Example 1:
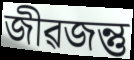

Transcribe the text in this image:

জীৱজন্তু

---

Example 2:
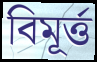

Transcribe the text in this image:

বিমূৰ্ত্ত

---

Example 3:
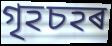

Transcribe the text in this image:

গৃহচহৰ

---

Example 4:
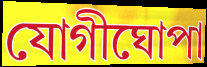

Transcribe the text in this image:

যোগীঘোপা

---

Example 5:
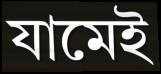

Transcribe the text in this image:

যামেই